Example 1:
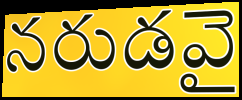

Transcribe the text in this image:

నరుడవై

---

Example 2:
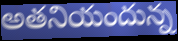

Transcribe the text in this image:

అతనియందున్న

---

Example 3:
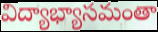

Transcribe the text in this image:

విద్యాభ్యాసమంతా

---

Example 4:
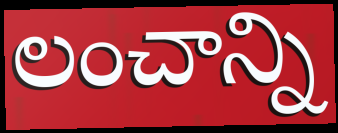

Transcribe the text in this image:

లంచాన్ని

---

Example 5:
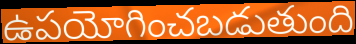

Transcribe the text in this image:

ఉపయోగించబడుతుంది